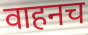
वाहनच